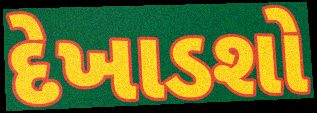
દેખાડશો